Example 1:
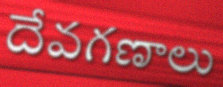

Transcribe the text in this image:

దేవగణాలు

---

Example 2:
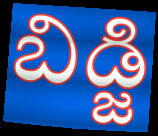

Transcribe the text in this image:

బిడ్జి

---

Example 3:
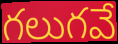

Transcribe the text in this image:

గలుగవే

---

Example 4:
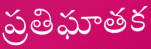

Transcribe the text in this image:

ప్రతిఘాతక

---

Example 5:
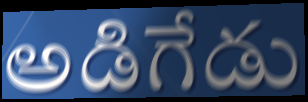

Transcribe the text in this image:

అడిగేడు